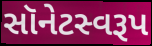
સૉનેટસ્વરૂપ